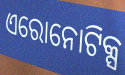
ଏରୋନୋଟିକ୍ସ